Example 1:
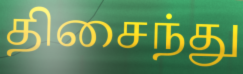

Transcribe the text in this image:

திசைந்து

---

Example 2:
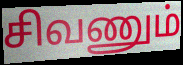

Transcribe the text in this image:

சிவணும்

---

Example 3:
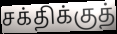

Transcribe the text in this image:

சக்திக்குத்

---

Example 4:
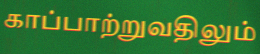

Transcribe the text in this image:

காப்பாற்றுவதிலும்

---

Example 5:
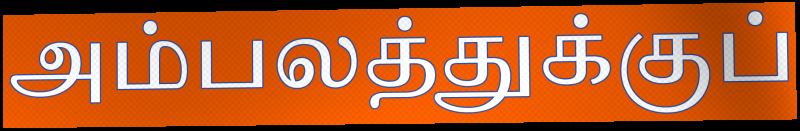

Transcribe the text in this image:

அம்பலத்துக்குப்